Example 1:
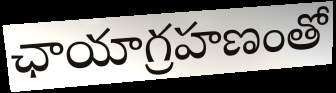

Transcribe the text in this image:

ఛాయాగ్రహణంతో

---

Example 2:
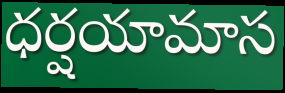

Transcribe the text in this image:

ధర్షయామాస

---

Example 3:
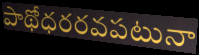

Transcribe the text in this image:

పాథోధరరవపటునా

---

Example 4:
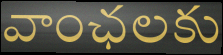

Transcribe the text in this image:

వాంఛలకు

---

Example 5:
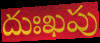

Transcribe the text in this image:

దుఃఖపు